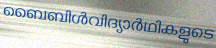
ബൈബിൾവിദ്യാർഥികളുടെ